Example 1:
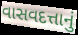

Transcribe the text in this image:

વાસવદત્તાનું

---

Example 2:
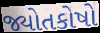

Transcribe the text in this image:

જ્યોતકોષો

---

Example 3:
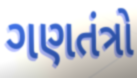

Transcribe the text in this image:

ગણતંત્રો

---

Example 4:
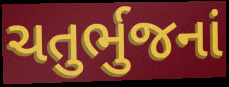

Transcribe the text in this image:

ચતુર્ભુજનાં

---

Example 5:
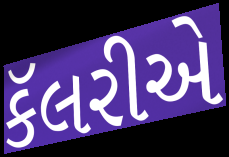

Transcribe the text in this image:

કૅલરીએ